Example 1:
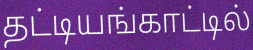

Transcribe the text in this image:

தட்டியங்காட்டில்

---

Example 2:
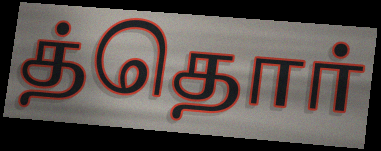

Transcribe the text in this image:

த்தொர்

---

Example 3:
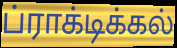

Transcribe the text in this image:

ப்ராக்டிக்கல்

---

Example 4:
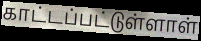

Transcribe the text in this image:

காட்டப்பட்டுள்ளாள்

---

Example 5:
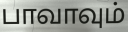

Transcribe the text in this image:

பாவாவும்